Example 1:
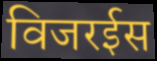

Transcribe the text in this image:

विजरईस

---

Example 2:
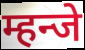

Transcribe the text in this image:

म्हन्जे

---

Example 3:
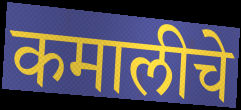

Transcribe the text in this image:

कमालीचे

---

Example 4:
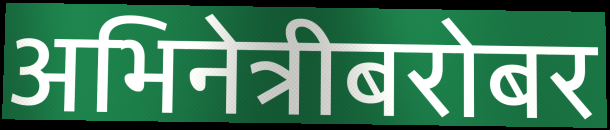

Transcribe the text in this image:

अभिनेत्रीबरोबर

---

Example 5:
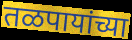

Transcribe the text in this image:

तळपायांच्या